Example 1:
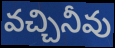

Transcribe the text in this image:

వచ్చినీవు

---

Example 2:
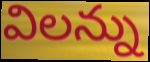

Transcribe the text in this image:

విలన్ను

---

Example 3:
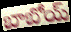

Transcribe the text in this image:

బాబోయ్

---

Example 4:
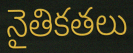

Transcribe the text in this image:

నైతికతలు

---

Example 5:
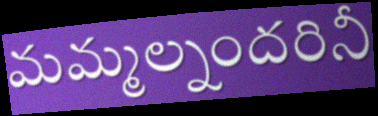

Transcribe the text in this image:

మమ్మల్నందరినీ